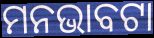
ମନଭାବଟା